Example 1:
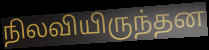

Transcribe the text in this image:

நிலவியிருந்தன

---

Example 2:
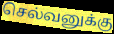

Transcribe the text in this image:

செல்வனுக்கு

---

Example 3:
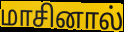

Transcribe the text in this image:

மாசினால்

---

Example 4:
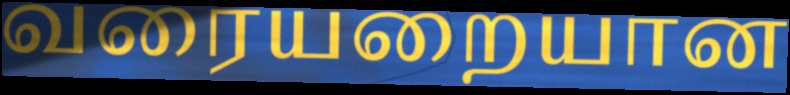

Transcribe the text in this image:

வரையறையான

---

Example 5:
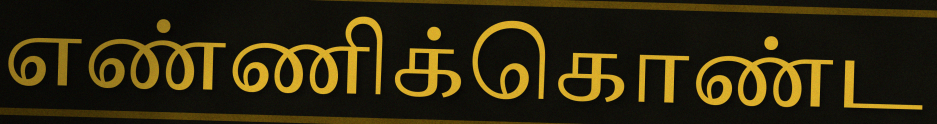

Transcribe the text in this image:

எண்ணிக்கொண்ட